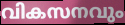
വികസനവും